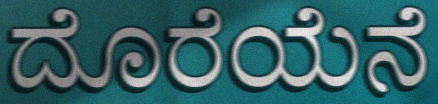
ದೊರೆಯೆನೆ